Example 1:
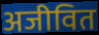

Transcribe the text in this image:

अजीवित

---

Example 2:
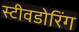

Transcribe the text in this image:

स्टीवडोरिंग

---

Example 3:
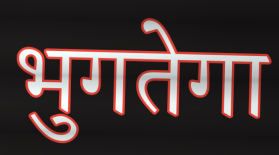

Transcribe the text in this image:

भुगतेगा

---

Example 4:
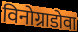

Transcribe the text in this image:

विनोग्राडोवा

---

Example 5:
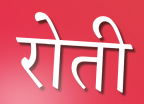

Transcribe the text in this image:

रोती